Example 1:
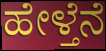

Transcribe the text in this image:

ಹೇಳ್ತೆನೆ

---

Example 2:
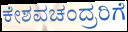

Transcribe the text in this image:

ಕೇಶವಚಂದ್ರರಿಗೆ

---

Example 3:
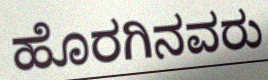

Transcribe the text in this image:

ಹೊರಗಿನವರು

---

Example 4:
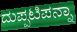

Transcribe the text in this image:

ದುಪ್ಪಟಿಪನ್ನಾ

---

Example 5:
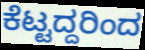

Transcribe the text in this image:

ಕೆಟ್ಟದ್ದರಿಂದ